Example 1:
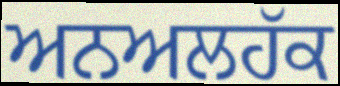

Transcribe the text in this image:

ਅਨਅਲਹੱਕ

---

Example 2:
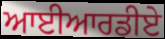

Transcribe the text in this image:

ਆਈਆਰਡੀਏ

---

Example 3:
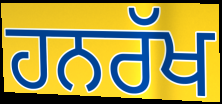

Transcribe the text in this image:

ਹਨਰੱਖ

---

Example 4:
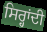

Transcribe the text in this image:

ਸਿਰ੍ਹਾਂਦੀ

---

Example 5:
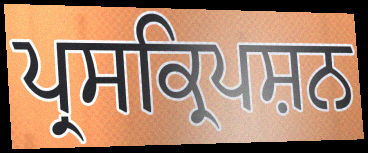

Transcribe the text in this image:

ਪ੍ਰਸਕ੍ਰਿਪਸ਼ਨ